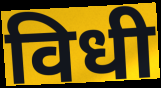
विधी